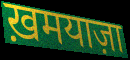
ख़मयाज़ा